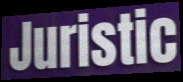
Juristic